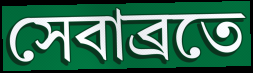
সেবাব্রতে